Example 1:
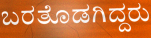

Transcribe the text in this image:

ಬರತೊಡಗಿದ್ದರು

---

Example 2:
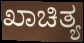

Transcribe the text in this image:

ಖಾಚಿತ್ಯ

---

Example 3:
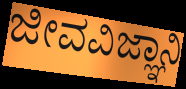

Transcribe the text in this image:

ಜೀವವಿಜ್ಞಾನಿ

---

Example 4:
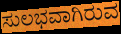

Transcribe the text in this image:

ಸುಲಭವಾಗಿರುವ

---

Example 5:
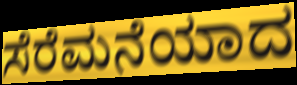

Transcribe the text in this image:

ಸೆರೆಮನೆಯಾದ